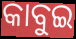
କାବୁଇ